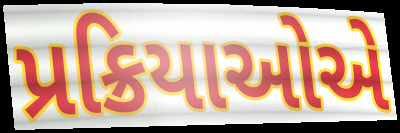
પ્રક્રિયાઓએ